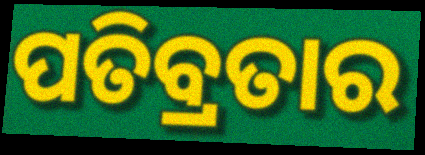
ପତିବ୍ରତାର